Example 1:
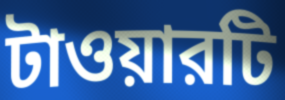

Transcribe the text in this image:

টাওয়ারটি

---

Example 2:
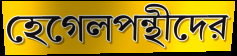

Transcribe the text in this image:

হেগেলপন্থীদের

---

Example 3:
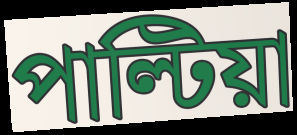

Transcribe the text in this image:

পাল্টিয়া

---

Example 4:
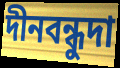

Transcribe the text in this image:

দীনবন্ধুদা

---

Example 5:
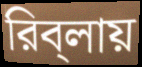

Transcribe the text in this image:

রিব্‌লায়